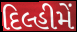
દિલ્હીમેં